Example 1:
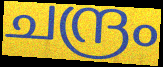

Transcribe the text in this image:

ചന്ദ്രം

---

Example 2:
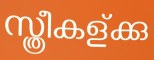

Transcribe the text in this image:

സ്ത്രീകള്ക്കു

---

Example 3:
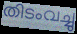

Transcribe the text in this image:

തിടംവച്ചു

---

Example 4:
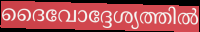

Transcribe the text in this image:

ദൈവോദ്ദേശ്യത്തിൽ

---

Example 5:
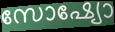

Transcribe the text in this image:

സോഷ്യോ